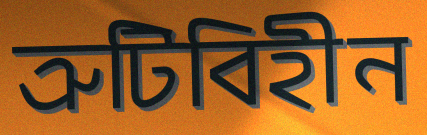
ত্রুটিবিহীন